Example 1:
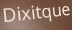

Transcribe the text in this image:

Dixitque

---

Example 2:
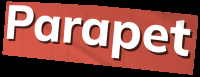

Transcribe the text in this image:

Parapet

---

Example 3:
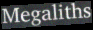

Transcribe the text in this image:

Megaliths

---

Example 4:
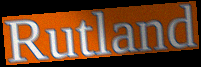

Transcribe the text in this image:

Rutland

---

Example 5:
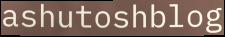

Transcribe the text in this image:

ashutoshblog